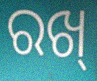
ରଖ୍